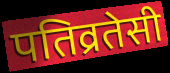
पतिव्रतेसी